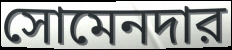
সোমেনদার